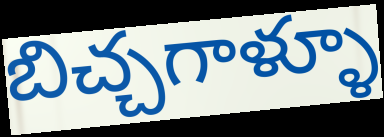
బిచ్చగాళ్ళూ